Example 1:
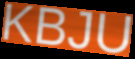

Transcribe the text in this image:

KBJU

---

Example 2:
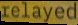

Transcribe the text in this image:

relayed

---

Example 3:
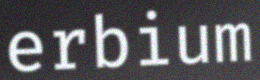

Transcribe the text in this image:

erbium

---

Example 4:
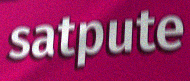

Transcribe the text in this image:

satpute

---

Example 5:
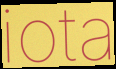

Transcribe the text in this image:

iota